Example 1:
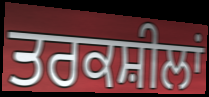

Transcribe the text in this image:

ਤਰਕਸ਼ੀਲਾਂ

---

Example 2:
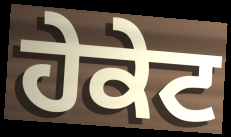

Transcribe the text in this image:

ਹੇਕੇਟ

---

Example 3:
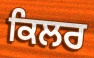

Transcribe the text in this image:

ਕਿਲਰ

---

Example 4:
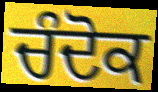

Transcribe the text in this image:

ਚੰਦੋਕ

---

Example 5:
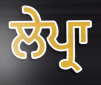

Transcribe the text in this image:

ਲੇਪ੍ਰਾ